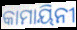
କାମାୟିନୀ